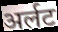
अर्लट